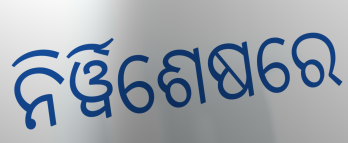
ନିର୍ୱିଶେଷରେ